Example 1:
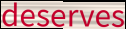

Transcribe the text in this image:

deserves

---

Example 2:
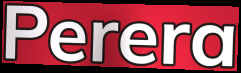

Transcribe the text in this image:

Perera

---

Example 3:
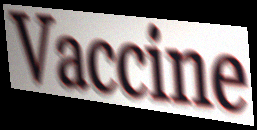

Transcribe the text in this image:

Vaccine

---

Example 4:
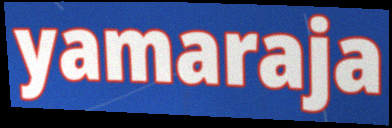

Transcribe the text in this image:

yamaraja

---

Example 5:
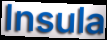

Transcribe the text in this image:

Insula